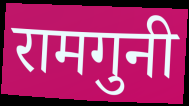
रामगुनी